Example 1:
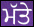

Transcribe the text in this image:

ਮੱਤੇ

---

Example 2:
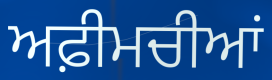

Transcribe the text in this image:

ਅਫ਼ੀਮਚੀਆਂ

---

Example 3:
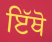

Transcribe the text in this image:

ਇੱਥੋ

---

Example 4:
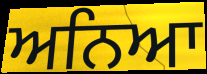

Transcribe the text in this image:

ਅਨਿਆ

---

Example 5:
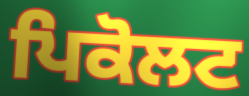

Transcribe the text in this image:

ਪਿਕੋਲਟ